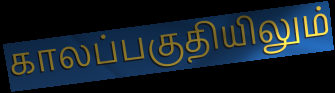
காலப்பகுதியிலும்